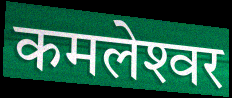
कमलेश्‍वर